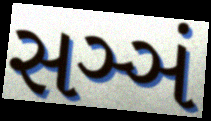
સઞ્ઞં